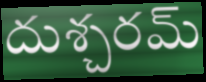
దుశ్చరమ్